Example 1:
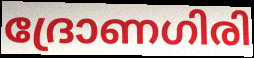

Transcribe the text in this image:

ദ്രോണഗിരി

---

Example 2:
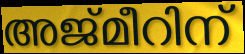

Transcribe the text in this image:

അജ്മീറിന്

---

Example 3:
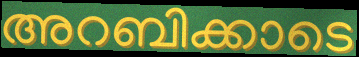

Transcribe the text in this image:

അറബിക്കാടെ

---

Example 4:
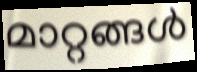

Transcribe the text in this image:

മാറ്റങ്ങൾ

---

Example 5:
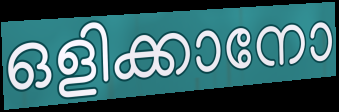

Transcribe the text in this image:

ഒളിക്കാനോ